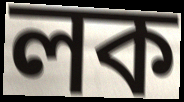
লক